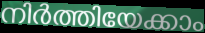
നിർത്തിയേക്കാം